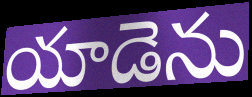
యాడెను